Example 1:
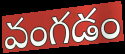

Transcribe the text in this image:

వంగడం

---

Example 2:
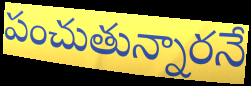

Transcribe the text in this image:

పంచుతున్నారనే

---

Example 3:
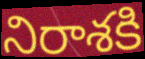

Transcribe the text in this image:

నిరాశకి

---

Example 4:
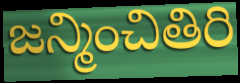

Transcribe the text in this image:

జన్మించితిరి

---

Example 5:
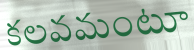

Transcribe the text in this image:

కలవమంటూ